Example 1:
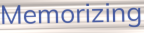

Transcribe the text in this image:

Memorizing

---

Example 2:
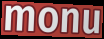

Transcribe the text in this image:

monu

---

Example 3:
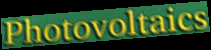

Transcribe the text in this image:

Photovoltaics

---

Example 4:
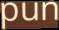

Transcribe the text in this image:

pun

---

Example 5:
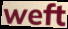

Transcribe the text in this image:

weft